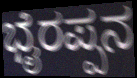
ಭೈರಪ್ಪನ